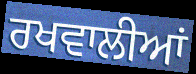
ਰਖਵਾਲੀਆਂ